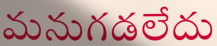
మనుగడలేదు